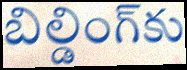
బిల్డింగ్‌కు